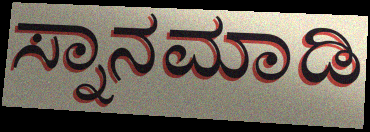
ಸ್ನಾನಮಾಡಿ